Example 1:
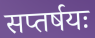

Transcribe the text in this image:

सप्तर्षयः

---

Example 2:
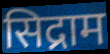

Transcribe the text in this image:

सिद्राम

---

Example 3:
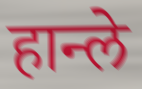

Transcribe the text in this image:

हान्ले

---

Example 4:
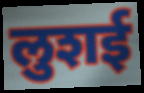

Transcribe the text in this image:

लुशई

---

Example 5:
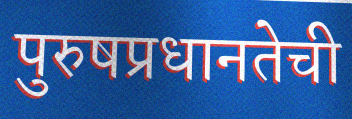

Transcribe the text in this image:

पुरुषप्रधानतेची